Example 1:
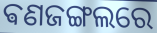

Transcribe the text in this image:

ଵଣଜଙ୍ଗଲରେ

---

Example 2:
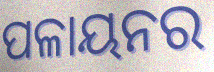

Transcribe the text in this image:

ପଳାୟନର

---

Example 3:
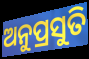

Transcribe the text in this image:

ଅନୁପ୍ରସୁତି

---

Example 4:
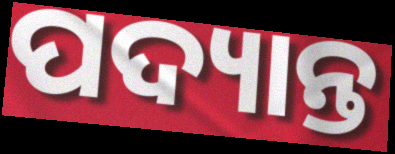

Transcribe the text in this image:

ପଦ୍ୟାନ୍ତ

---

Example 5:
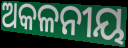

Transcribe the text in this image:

ଅକଳନୀୟ